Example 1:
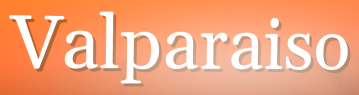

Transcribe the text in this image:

Valparaiso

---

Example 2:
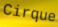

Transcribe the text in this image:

Cirque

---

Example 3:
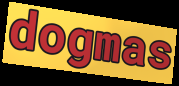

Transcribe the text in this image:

dogmas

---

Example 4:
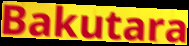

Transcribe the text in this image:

Bakutara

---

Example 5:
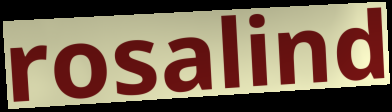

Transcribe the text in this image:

rosalind